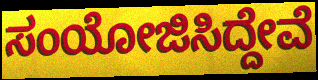
ಸಂಯೋಜಿಸಿದ್ದೇವೆ